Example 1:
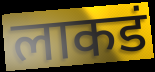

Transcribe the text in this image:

लाकडं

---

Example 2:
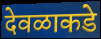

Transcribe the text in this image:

देवळाकडे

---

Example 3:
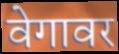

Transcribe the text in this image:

वेगावर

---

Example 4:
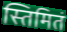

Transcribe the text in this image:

स्तिमितं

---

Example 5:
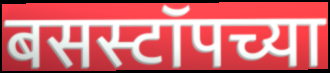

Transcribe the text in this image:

बसस्टॉपच्या